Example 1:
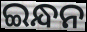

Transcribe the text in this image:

ଇନ୍ଧନ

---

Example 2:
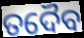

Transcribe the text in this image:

ତଦୈବ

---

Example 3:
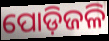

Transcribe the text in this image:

ପୋଡ଼ିଜଳି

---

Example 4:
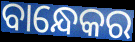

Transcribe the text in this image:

ବାନ୍ଧେକର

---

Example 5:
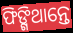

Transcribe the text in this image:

ଫିଙ୍ଗିଥାନ୍ତେ